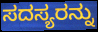
ಸದಸ್ಯರನ್ನು